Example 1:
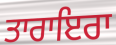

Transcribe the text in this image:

ਤਾਰਾਇਰਾ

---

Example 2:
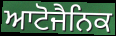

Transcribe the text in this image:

ਆਟੋਜੈਨਿਕ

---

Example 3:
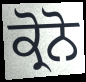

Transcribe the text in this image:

ਕ੍ਰੋਨੋ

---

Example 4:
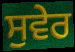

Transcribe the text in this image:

ਸੁਵੇਰ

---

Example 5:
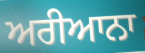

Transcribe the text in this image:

ਅਰੀਆਨਾ